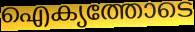
ഐക്യത്തോടെ